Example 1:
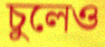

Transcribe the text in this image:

চুলেও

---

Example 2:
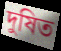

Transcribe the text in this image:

দুষিত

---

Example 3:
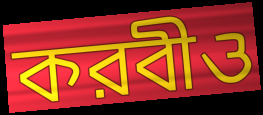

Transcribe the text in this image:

করবীও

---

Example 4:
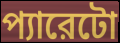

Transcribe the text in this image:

প্যারেটো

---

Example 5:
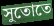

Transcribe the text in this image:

সুতোতে